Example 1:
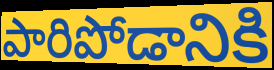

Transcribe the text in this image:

పారిపోడానికి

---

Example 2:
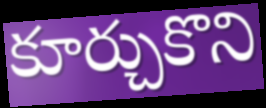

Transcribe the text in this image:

కూర్చుకొని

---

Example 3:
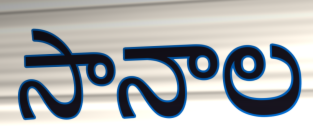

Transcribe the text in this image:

సానాల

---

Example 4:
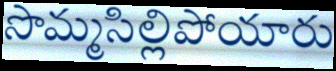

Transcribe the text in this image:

సొమ్మసిల్లిపోయారు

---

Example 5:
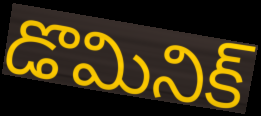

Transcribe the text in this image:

డొమినిక్